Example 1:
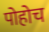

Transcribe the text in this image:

पोहोच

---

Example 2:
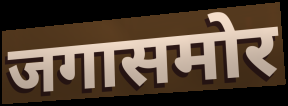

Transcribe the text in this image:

जगासमोर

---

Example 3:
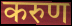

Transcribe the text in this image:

करुण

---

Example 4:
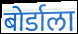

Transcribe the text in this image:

बोर्डाला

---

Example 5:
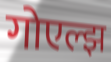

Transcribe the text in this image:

गोएल्झ